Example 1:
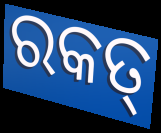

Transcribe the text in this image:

ରକତ୍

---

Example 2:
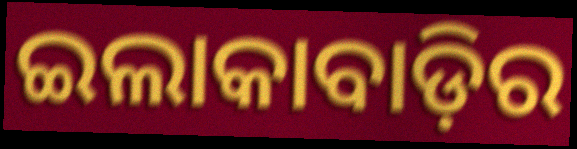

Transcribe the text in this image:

ଇଲାକାବାଡ଼ିର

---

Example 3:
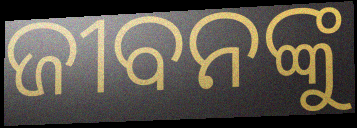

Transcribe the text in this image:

ଜୀବନଙ୍କୁ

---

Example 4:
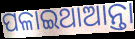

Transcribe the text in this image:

ପଳାଇଥାଆନ୍ତା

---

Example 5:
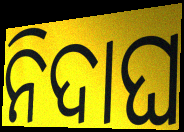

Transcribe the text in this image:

ନିଦାଘ